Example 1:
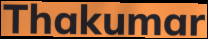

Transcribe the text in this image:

Thakumar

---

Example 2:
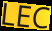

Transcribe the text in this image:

LEC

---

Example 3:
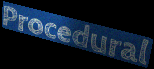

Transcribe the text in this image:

Procedural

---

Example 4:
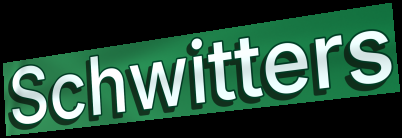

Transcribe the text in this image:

Schwitters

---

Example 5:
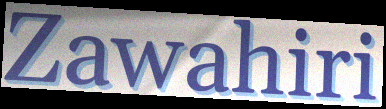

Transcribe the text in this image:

Zawahiri